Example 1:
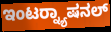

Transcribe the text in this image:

ಇಂಟರ್‍ನ್ಯಾಷನಲ್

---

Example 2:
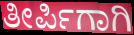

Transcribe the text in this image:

ತೀರ್ಪಿಗಾಗಿ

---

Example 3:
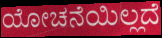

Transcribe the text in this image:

ಯೋಚನೆಯಿಲ್ಲದೆ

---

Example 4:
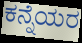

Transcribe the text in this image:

ಕನ್ನೆಯರ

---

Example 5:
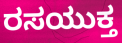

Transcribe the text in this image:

ರಸಯುಕ್ತ